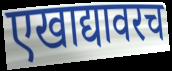
एखाद्यावरच